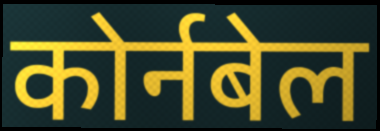
कोर्नबेल